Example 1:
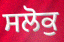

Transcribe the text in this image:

ਸਲੋਕੁ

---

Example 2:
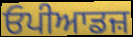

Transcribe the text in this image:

ਓਪੀਆਡਜ਼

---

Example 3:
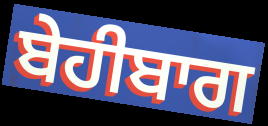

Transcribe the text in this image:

ਬੇਹੀਬਾਗ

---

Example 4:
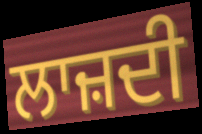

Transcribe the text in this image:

ਲਾਜ਼ਦੀ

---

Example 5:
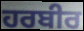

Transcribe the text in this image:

ਹਰਬੀਰ